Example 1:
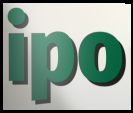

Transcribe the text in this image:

ipo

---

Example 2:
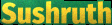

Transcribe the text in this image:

Sushruth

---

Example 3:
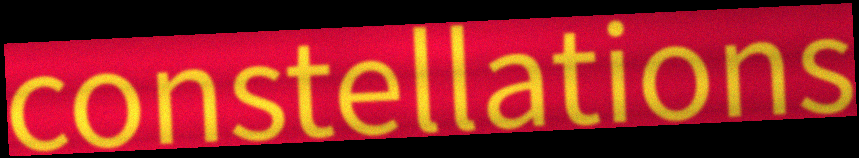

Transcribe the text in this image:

constellations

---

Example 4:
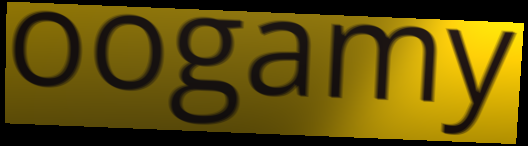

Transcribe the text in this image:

oogamy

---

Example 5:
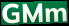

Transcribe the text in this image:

GMm